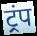
ट्रंप